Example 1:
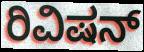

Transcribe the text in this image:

ರಿವಿಷನ್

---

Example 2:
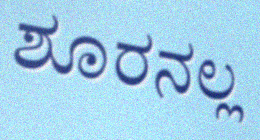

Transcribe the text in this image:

ಶೂರನಲ್ಲ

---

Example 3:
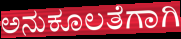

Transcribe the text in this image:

ಅನುಕೂಲತೆಗಾಗಿ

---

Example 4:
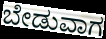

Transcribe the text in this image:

ಬೇಡುವಾಗ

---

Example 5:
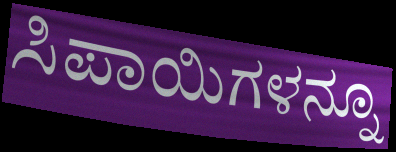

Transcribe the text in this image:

ಸಿಪಾಯಿಗಳನ್ನೂ